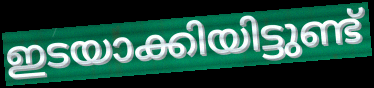
ഇടയാക്കിയിട്ടുണ്ട്